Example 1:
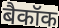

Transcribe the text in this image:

बैकॉक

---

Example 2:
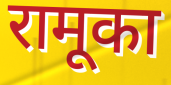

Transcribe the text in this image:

रामूका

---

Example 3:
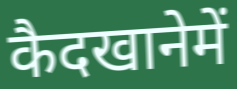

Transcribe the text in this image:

कैदखानेमें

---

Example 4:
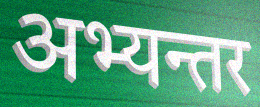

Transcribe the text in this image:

अभ्यन्तर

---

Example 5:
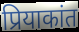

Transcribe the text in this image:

प्रियाकांत